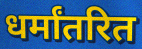
धर्मांतरित